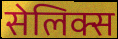
सेलिक्स